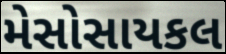
મેસોસાયકલ